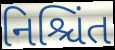
નિશ્ચિંત